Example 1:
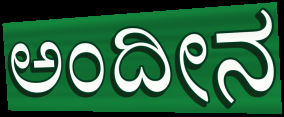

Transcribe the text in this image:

ಅಂದೀನ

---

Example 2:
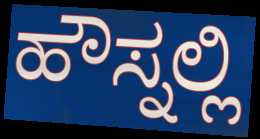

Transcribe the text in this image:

ಹೌಸ್ನಲ್ಲಿ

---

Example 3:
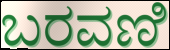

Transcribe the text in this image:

ಬರವಣಿ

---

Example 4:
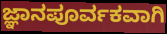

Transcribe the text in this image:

ಜ್ಞಾನಪೂರ್ವಕವಾಗಿ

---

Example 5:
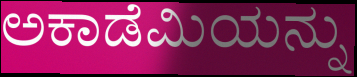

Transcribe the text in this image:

ಅಕಾಡೆಮಿಯನ್ನು